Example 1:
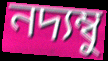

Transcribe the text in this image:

নদ্যম্বু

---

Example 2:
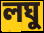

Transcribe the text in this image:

লঘু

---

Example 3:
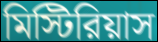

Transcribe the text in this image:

মিস্টিরিয়াস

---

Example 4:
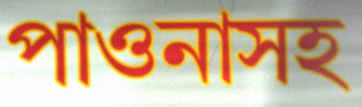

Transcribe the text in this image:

পাওনাসহ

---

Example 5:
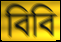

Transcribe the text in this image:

বিবি